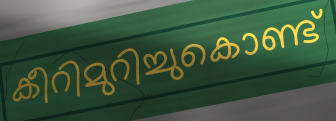
കീറിമുറിച്ചുകൊണ്ട്